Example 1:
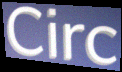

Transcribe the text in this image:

Circ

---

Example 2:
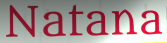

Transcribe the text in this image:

Natana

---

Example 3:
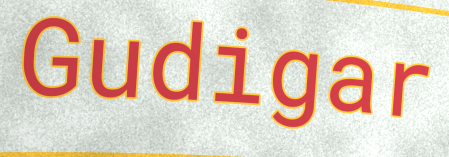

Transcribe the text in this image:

Gudigar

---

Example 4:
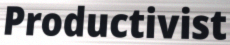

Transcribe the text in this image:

Productivist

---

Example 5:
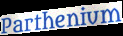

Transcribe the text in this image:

Parthenium